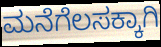
ಮನೆಗೆಲಸಕ್ಕಾಗಿ